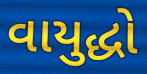
વાયુદ્ધો